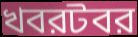
খবরটবর